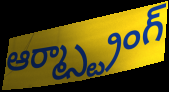
ఆర్మ్స్ట్రాంగ్